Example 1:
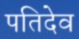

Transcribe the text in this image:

पतिदेव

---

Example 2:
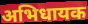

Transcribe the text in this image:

अभिधायक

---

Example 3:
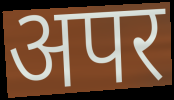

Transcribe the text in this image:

अपर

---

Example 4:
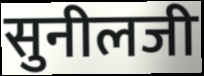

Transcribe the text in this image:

सुनीलजी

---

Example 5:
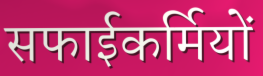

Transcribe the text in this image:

सफाईकर्मियों